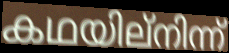
കഥയില്നിന്ന്